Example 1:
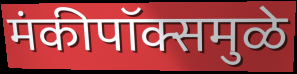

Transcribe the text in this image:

मंकीपॉक्समुळे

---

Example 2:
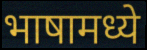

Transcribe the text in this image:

भाषामध्ये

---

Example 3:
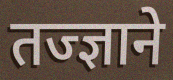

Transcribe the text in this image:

तज्ज्ञाने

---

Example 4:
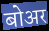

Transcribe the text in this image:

बोअर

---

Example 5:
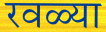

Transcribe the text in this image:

रवळ्या